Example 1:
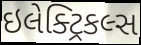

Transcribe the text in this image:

ઇલેક્ટ્રિકલ્સ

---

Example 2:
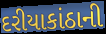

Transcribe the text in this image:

દરીયાકાંઠાની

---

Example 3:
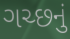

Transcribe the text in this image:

ગચ્છનું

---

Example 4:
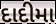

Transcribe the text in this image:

દાદીમા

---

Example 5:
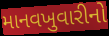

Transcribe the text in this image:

માનવખુવારીનો